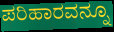
ಪರಿಹಾರವನ್ನೂ